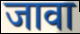
जावा